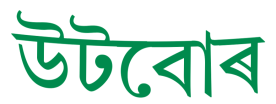
উটবোৰ